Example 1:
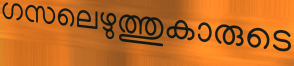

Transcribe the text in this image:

ഗസലെഴുത്തുകാരുടെ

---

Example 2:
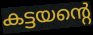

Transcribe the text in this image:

കട്ടയന്റെ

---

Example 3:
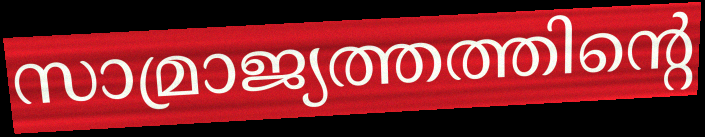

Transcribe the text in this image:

സാമ്രാജ്യത്തത്തിന്റെ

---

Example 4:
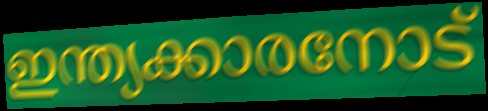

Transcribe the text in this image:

ഇന്ത്യക്കാരനോട്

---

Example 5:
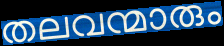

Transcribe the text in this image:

തലവന്മാരും